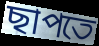
ছাপতে